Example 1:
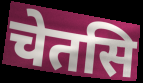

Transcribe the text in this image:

चेतसि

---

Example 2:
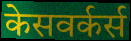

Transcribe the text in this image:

केसवर्कर्स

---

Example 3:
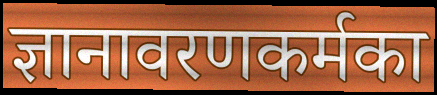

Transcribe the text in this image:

ज्ञानावरणकर्मका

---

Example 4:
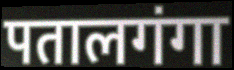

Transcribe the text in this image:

पतालगंगा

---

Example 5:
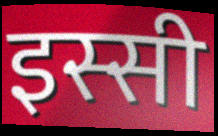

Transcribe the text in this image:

इस्सी